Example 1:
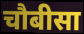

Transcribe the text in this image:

चौबीसा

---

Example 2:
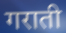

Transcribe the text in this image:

गराती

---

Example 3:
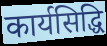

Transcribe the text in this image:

कार्यसिद्धि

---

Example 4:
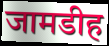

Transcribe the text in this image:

जामडीह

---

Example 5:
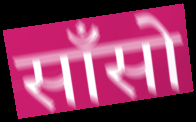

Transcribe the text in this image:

साँसो